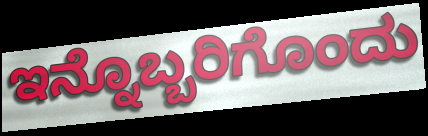
ಇನ್ನೊಬ್ಬರಿಗೊಂದು